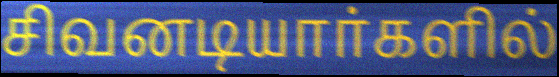
சிவனடியார்களில்